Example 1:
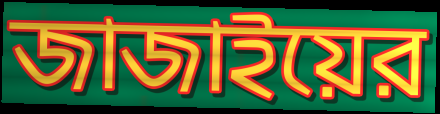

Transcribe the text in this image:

জাজাইয়ের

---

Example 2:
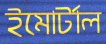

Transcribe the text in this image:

ইমোর্টাল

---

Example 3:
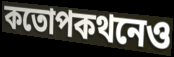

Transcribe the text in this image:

কতোপকথনেও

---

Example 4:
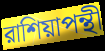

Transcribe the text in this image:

রাশিয়াপন্থী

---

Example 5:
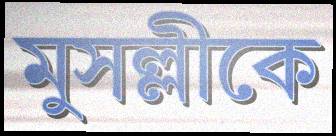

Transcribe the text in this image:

মুসল্লীকে